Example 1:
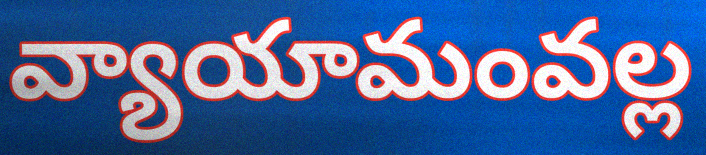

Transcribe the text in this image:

వ్యాయామంవల్ల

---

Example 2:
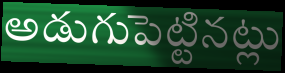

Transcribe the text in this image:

అడుగుపెట్టినట్లు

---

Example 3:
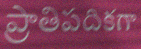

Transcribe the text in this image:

ప్రాతిపదికగా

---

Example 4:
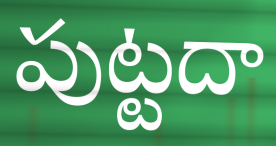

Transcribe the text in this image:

పుట్టదా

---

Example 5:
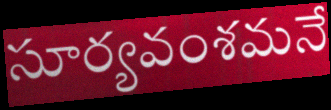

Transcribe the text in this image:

సూర్యవంశమనే